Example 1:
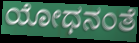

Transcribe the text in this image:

ಯೋಧನಂತೆ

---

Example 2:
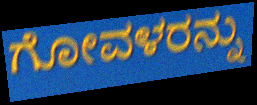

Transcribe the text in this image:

ಗೋವಳರನ್ನು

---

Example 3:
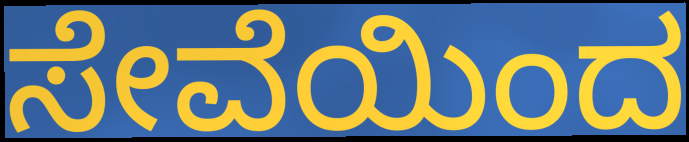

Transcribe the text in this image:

ಸೇವೆಯಿಂದ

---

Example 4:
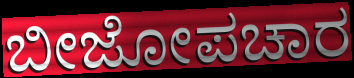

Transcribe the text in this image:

ಬೀಜೋಪಚಾರ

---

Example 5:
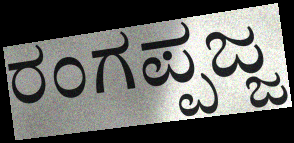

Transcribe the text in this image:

ರಂಗಪ್ಪಜ್ಜ